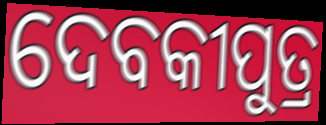
ଦେବକୀପୁତ୍ର